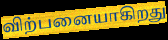
விற்பனையாகிறது